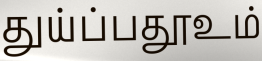
துய்ப்பதூஉம்